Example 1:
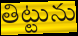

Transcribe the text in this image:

తిట్టును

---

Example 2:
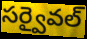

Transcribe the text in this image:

సర్వైవల్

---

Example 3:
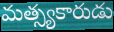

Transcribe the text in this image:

మత్స్యకారుడు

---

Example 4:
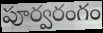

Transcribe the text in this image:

పూర్వరంగం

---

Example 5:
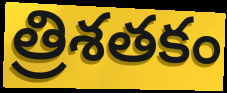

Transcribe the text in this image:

త్రిశతకం